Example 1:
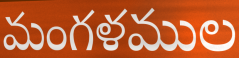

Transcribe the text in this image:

మంగళముల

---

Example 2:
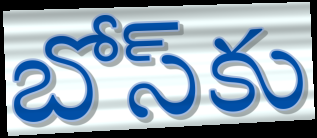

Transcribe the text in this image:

బోస్‌కు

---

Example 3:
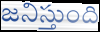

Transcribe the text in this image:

జనిస్తుంది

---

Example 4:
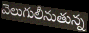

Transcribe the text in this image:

వెలుగులీనుతున్న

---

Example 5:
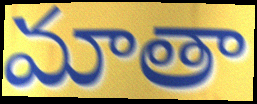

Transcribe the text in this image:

మాతా